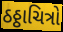
ઠઠ્ઠાચિત્રો